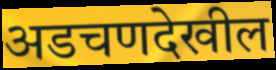
अडचणदेखील